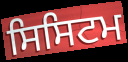
ਸਿਸਿਟਮ